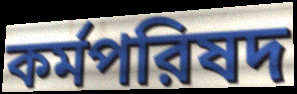
কর্মপরিষদ